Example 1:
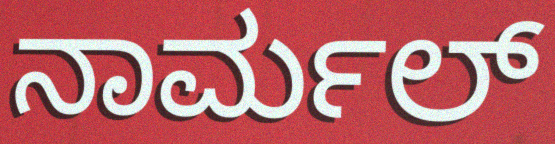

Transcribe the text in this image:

ನಾರ್ಮಲ್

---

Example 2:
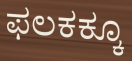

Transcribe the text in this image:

ಫಲಕಕ್ಕೂ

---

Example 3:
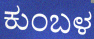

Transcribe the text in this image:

ಕುಂಬಳ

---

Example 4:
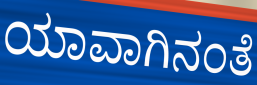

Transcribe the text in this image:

ಯಾವಾಗಿನಂತೆ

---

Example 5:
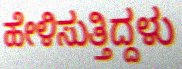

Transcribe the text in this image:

ಹೇಳಿಸುತ್ತಿದ್ದಳು